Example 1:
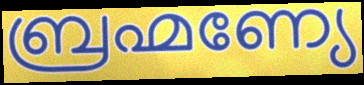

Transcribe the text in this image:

ബ്രഹ്മണ്യേ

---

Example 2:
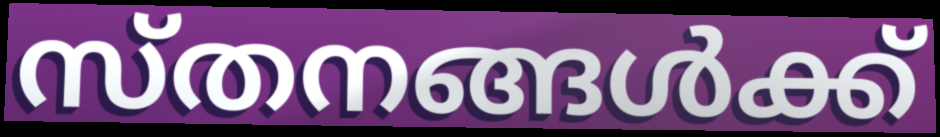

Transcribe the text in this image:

സ്തനങ്ങൾക്ക്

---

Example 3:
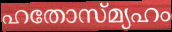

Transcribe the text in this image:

ഹതോസ്മ്യഹം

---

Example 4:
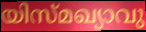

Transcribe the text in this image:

യിസ്മഖ്യാവു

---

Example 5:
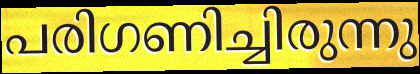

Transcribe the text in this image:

പരിഗണിച്ചിരുന്നു